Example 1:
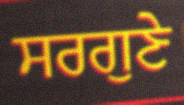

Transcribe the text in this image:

ਸਰਗੁਣੇ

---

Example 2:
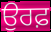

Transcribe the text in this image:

ਉਰਫ਼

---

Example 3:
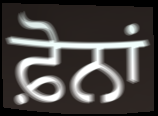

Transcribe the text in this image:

ਫ਼ੋਨਾਂ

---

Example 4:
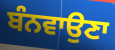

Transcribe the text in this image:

ਬੰਨਵਾਉਣਾ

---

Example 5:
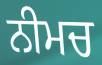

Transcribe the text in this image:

ਨੀਮਚ